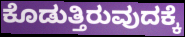
ಕೊಡುತ್ತಿರುವುದಕ್ಕೆ